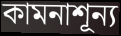
কামনাশূন্য